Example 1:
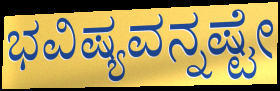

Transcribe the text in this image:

ಭವಿಷ್ಯವನ್ನಷ್ಟೇ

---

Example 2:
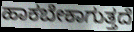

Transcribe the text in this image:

ಹಾಕಬೇಕಾಗುತ್ತದೆ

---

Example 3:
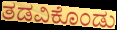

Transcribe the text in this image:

ತಡವಿಕೊಂಡು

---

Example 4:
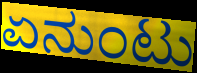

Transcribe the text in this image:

ಏನುಂಟು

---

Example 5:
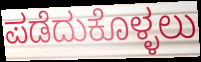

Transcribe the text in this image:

ಪಡೆದುಕೊಳ್ಳಲು